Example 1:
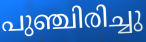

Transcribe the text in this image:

പുഞ്ചിരിച്ചു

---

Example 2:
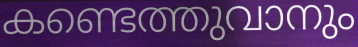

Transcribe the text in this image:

കണ്ടെത്തുവാനും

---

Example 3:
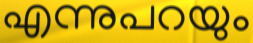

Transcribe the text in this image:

എന്നുപറയും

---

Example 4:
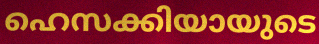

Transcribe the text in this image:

ഹെസക്കിയായുടെ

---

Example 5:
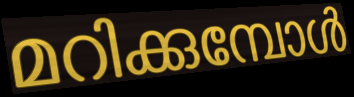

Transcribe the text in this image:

മറിക്കുമ്പോൾ